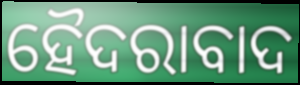
ହୈଦରାବାଦ